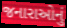
જનારાઓનું